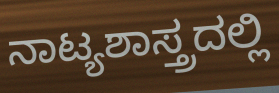
ನಾಟ್ಯಶಾಸ್ತ್ರದಲ್ಲಿ